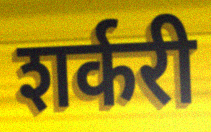
शर्करी